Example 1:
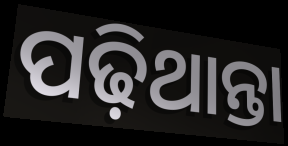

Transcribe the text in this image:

ପଢ଼ିଥାନ୍ତା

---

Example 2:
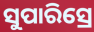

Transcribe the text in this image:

ସୁପାରିସ୍ରେ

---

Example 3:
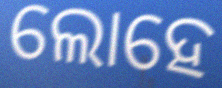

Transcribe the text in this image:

ଲୋହେ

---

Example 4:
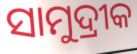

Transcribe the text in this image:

ସାମୁଦ୍ରୀକ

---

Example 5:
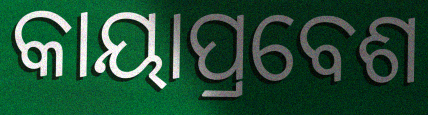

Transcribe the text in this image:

କାୟାପ୍ରବେଶ